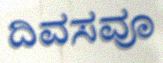
ದಿವಸವೂ